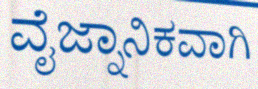
ವೈಜ್ನಾನಿಕವಾಗಿ